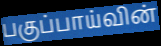
பகுப்பாய்வின்